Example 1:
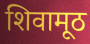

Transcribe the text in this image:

शिवामूठ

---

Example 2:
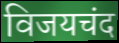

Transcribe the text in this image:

विजयचंद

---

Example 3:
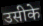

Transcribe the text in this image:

उसीके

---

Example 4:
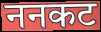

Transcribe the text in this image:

ननकट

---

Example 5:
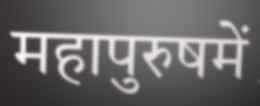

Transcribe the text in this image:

महापुरुषमें